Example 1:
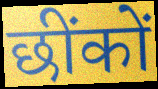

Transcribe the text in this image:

छींकों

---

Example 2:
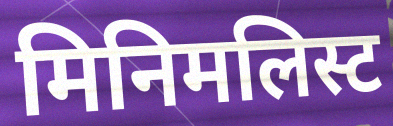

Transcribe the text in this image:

मिनिमलिस्ट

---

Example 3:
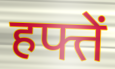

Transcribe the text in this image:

हफ्तें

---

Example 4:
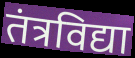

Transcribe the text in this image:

तंत्रविद्या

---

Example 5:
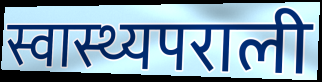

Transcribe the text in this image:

स्वास्थ्यपराली